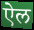
ऐल